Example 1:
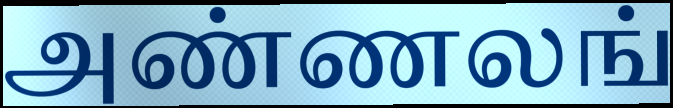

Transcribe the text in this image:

அண்ணலங்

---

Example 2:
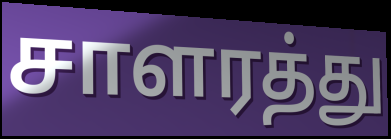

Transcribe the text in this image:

சாளரத்து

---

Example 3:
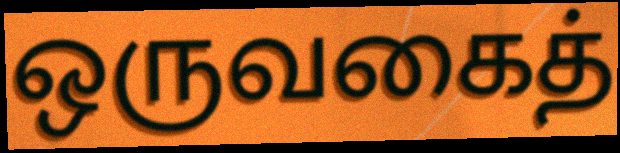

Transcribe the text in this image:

ஒருவகைத்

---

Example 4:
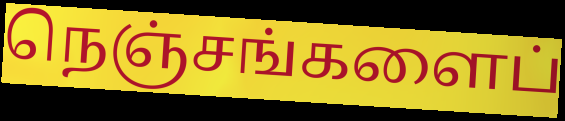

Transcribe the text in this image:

நெஞ்சங்களைப்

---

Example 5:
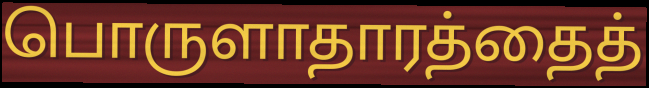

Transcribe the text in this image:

பொருளாதாரத்தைத்